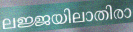
ലജ്ജയിലാതിരാ